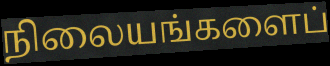
நிலையங்களைப்